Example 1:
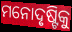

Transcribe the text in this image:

ମନୋଦୃଷ୍ଟିକୁ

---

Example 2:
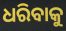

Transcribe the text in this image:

ଧରିବାକୁ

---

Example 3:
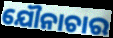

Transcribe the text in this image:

ଯୌନାଚାର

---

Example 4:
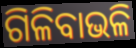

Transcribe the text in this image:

ଗିଳିବାଭଳି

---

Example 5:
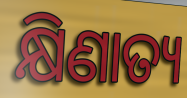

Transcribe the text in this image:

କ୍ଷିଣାତ୍ୟ